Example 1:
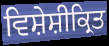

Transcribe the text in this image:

ਵਿਸ਼ੇਸ਼ੀਕ੍ਰਿਤ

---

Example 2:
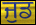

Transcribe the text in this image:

ਜੁਡ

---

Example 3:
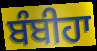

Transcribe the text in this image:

ਬੰਬੀਹਾ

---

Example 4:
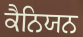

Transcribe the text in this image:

ਕੈਨਿਯਨ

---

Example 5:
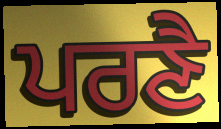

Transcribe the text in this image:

ਪਰਣੈ